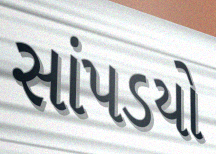
સાંપડયો